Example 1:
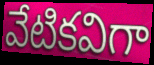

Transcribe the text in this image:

వేటికవిగా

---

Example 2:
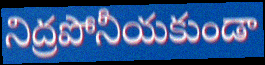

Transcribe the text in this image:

నిద్రపోనీయకుండా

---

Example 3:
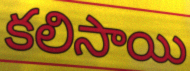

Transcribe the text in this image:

కలిసాయి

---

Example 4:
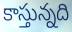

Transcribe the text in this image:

కాస్తున్నది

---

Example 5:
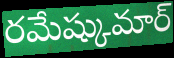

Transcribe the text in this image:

రమేష్కుమార్